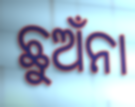
ଛୁଅଁନା